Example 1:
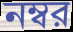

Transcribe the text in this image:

নম্বর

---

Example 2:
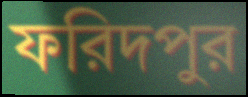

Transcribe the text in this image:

ফরিদপুর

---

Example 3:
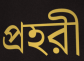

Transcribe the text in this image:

প্রহরী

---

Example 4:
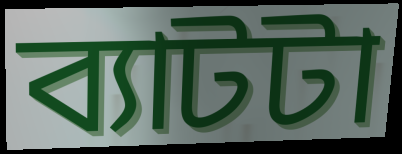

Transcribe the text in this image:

ব্যাটটা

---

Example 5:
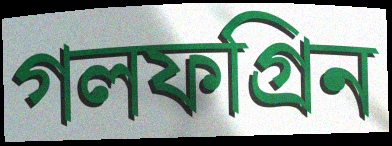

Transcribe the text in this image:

গলফগ্রিন